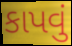
કાપવું